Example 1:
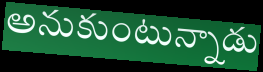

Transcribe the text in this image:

అనుకుంటున్నాడు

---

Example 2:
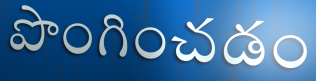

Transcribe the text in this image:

పొంగించడం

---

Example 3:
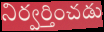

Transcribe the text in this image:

నిర్వర్తించడు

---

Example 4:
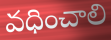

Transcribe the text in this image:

వధించాలి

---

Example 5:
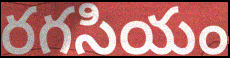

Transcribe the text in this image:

రగసియం